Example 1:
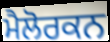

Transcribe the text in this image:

ਮੈਲੋਰਕਨ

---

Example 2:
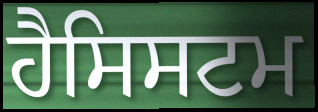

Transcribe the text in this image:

ਹੈਸਿਸਟਮ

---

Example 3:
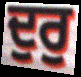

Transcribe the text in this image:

ਦੁਰੁ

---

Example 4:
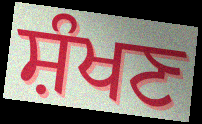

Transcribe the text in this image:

ਸ਼ੰਖਣ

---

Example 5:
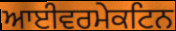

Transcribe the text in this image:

ਆਈਵਰਮੇਕਟਿਨ